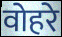
वोहरे